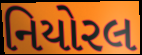
નિયોરલ